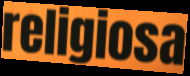
religiosa